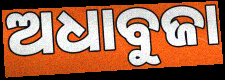
ଅଧାବୁଜା